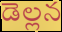
డెల్లన